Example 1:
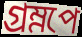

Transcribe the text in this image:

গ্রম্নপে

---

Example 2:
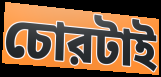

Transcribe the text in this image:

চোরটাই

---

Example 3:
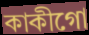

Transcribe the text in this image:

কাকীগো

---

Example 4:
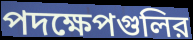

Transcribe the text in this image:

পদক্ষেপগুলির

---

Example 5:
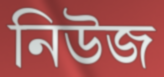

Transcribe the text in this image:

নিউজ